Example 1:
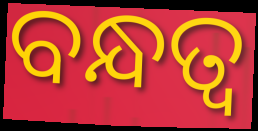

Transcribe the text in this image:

ବନ୍ଧତ୍ୱ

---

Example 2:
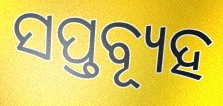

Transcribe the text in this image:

ସପ୍ତବ୍ୟୂହ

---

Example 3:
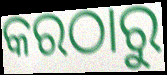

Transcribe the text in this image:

କରଠାରୁ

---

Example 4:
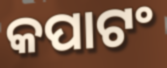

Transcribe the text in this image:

କପାଟଂ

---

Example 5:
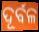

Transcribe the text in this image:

ଦୂର୍ବଳ